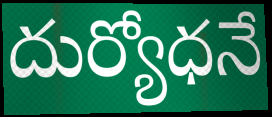
దుర్యోధనే